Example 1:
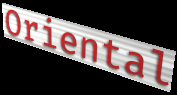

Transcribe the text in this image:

Oriental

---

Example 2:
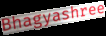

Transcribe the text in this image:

Bhagyashree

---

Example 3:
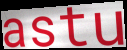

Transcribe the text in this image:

astu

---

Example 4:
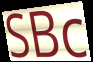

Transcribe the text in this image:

SBc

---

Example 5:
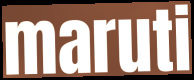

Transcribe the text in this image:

maruti